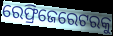
ରେଫ୍ରିଜେରେଟରକୁ